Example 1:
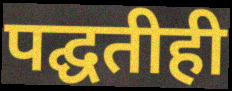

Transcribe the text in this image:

पद्घतीही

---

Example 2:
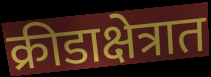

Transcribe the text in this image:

क्रीडाक्षेत्रात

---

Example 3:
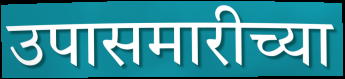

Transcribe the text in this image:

उपासमारीच्या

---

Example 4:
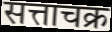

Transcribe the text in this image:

सत्ताचक्र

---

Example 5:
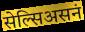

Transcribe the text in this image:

सेल्सिअसनं